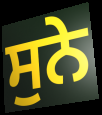
ਸੁਨੇ